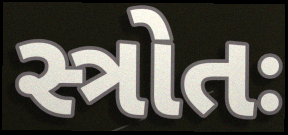
સ્ત્રોતઃ